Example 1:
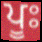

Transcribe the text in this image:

ਪੂਃ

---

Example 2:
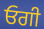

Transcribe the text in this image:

ਓਗੀ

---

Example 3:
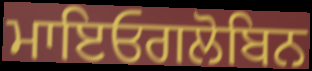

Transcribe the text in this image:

ਮਾਇਓਗਲੋਬਿਨ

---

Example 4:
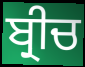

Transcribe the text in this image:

ਬ੍ਰੀਚ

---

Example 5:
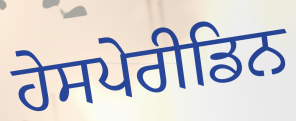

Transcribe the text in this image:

ਹੇਸਪੇਰੀਡਿਨ